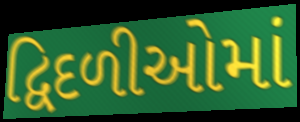
દ્વિદળીઓમાં